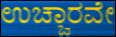
ಉಚ್ಚಾರವೇ